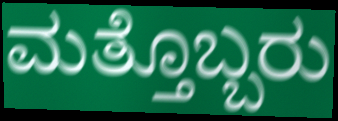
ಮತ್ತೊಬ್ಬರು